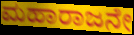
ಮಹಾರಾಜನೇ